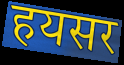
हयसर